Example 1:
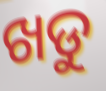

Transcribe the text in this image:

ଖଡୁ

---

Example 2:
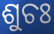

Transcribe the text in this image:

ଶୁଚଃ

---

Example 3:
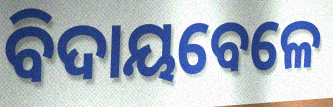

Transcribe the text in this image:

ବିଦାୟବେଳେ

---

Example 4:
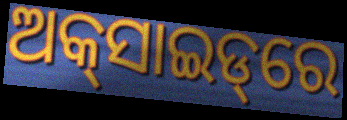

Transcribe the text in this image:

ଅକ୍‌ସାଇଡ୍‌ରେ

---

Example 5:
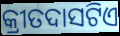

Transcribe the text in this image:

କ୍ରୀତଦାସଟିଏ